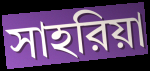
সাহরিয়া